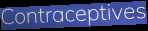
Contraceptives